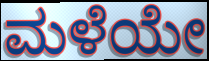
ಮಳೆಯೇ